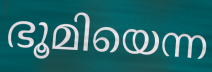
ഭൂമിയെന്ന